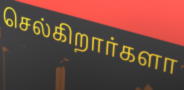
செல்கிறார்களா